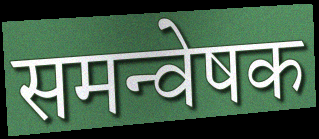
समन्वेषक